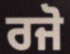
ਰਜੋ